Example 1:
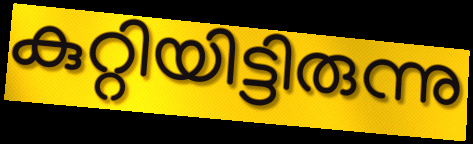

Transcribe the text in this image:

കുറ്റിയിട്ടിരുന്നു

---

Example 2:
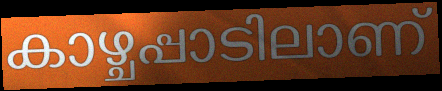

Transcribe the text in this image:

കാഴ്ചപ്പാടിലാണ്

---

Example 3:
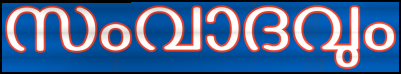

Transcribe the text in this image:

സംവാദവും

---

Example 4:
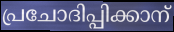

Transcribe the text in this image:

പ്രചോദിപ്പിക്കാന്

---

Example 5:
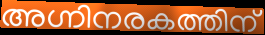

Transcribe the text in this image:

അഗ്നിനരകത്തിന്